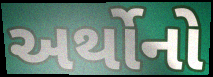
અર્થોનો